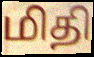
மிதி